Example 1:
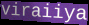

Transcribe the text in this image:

viraiiya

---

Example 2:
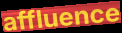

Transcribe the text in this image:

affluence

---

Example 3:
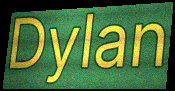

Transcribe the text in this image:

Dylan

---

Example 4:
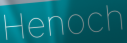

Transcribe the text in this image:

Henoch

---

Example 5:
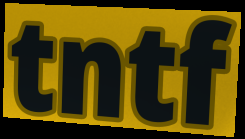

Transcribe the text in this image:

tntf